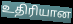
உதிரியான